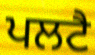
ਪਲਟੈ